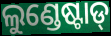
ଲୁଣ୍ଡେଷ୍ଟାଡ୍